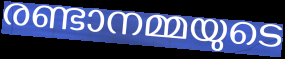
രണ്ടാനമ്മയുടെ